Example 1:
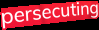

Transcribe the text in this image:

persecuting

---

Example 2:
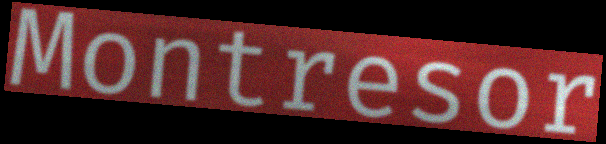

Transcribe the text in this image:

Montresor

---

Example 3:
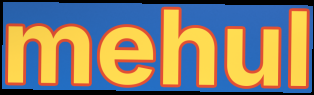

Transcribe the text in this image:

mehul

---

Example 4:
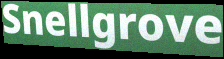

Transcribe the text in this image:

Snellgrove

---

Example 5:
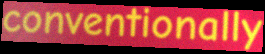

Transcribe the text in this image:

conventionally